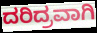
ದರಿದ್ರವಾಗಿ